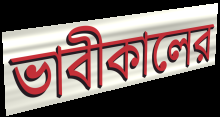
ভাবীকালের